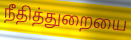
நீதித்துறையை